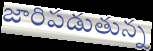
జారిపడుతున్న